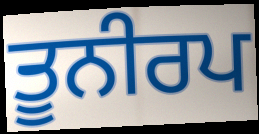
ਤੂਨੀਰਪ